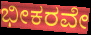
ಭೀಕರವೇ